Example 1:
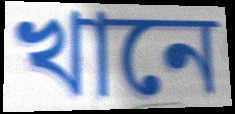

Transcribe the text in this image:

খানে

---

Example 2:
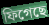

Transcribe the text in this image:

ফিগেছে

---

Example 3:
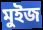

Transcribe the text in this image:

মুইজ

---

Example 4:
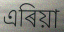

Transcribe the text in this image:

এৰিয়া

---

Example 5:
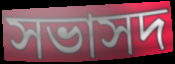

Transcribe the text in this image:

সভাসদ